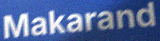
Makarand